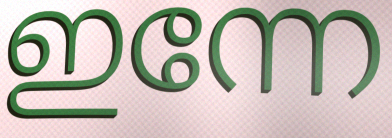
ഇന്നേ